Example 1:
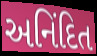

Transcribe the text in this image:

અનિંદિત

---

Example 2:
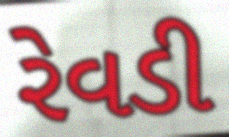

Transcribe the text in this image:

રેવડી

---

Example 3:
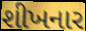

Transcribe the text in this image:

શીખનાર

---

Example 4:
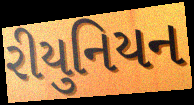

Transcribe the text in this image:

રીયુનિયન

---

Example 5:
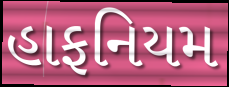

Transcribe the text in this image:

હાફનિયમ